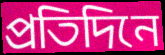
প্ৰতিদিনে